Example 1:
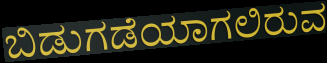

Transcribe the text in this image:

ಬಿಡುಗಡೆಯಾಗಲಿರುವ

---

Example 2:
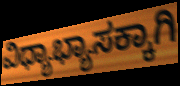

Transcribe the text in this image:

ವಿಧ್ಯಾಭ್ಯಾಸಕ್ಕಾಗಿ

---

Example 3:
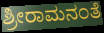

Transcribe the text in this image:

ಶ್ರೀರಾಮನಂತೆ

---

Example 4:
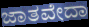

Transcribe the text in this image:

ಜಾತವೇದಾ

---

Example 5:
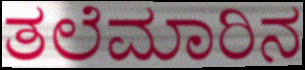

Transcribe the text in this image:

ತಲೆಮಾರಿನ